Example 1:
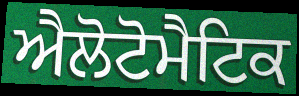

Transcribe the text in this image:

ਐਲੋਟੋਮੈਟਿਕ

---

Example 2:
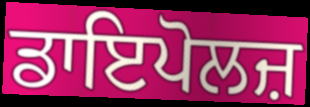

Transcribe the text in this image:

ਡਾਇਪੋਲਜ਼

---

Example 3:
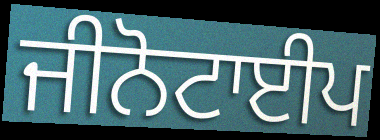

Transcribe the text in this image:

ਜੀਨੋਟਾਈਪ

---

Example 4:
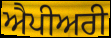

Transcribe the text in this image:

ਐਪੀਅਰੀ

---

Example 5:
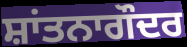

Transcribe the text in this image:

ਸ਼ਾਂਤਨਾਗੌਦਰ